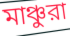
মাঞ্চুরা